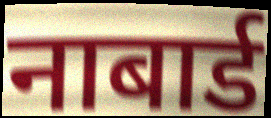
नाबार्ड